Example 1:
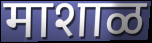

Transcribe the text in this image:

माशाळ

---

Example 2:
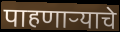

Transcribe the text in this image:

पाहणाऱ्याचे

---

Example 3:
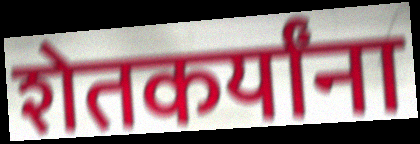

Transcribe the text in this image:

शेतकर्यांना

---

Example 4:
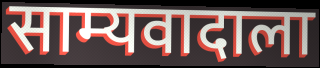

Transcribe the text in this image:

साम्यवादाला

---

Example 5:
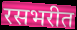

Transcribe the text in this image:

रसभरीत